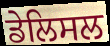
ਡੇਲਿਸਲ